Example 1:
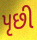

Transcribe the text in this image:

પૃછી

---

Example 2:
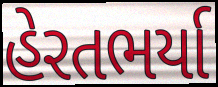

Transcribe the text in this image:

હેરતભર્યા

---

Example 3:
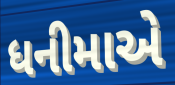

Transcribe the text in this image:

ધનીમાએ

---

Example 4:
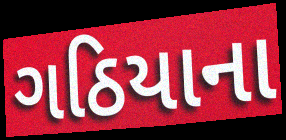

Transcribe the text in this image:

ગઠિયાના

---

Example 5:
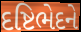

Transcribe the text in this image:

દષ્ટિભેદને